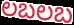
లబలబ